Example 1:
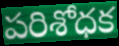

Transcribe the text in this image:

పరిశోధక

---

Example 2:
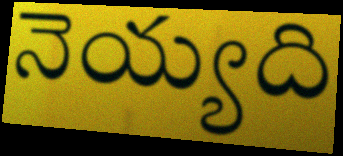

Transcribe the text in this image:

నెయ్యది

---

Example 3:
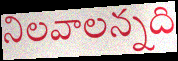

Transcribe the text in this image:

నిలవాలన్నది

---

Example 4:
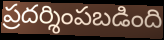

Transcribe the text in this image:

ప్రదర్శింపబడింది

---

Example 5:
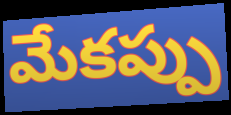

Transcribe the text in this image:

మేకప్పు